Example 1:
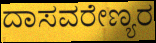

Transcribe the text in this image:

ದಾಸವರೇಣ್ಯರ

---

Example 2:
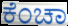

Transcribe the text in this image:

ಕೆಂಚಾ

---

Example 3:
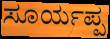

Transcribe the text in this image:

ಸೂರ್ಯಪ್ಪ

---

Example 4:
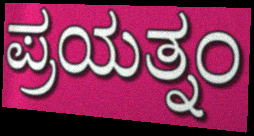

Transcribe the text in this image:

ಪ್ರಯತ್ನಂ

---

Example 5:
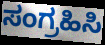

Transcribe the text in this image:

ಸಂಗ್ರಹಿಸಿ